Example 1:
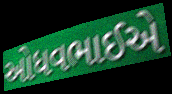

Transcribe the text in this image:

ઓધવભાઈએ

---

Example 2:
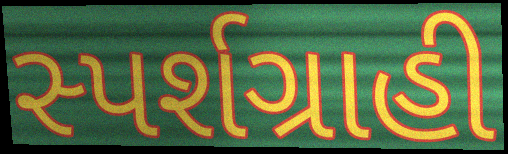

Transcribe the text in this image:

સ્પર્શગ્રાહી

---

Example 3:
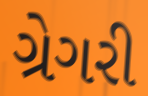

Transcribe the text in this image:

ગ્રેગરી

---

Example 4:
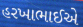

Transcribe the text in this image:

હરખાભાઈએ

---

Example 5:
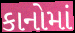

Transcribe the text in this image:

કાનોમાં